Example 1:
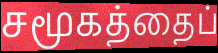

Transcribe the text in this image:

சமூகத்தைப்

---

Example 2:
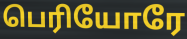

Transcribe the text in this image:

பெரியோரே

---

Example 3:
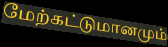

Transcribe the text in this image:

மேற்கட்டுமானமும்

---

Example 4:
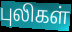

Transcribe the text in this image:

புலிகள்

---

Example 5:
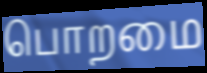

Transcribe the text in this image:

பொறமை